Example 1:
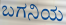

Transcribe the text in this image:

ಬಗನಿಯ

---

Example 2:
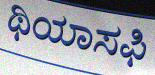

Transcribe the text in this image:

ಥಿಯಾಸಫಿ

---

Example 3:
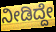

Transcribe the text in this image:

ನೀಡಿದ್ದೇ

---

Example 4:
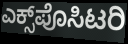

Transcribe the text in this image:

ಎಕ್ಸ್‌ಪೊಸಿಟರಿ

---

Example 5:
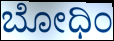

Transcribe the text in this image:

ಬೋಧಿಂ